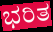
ಭರಿತ